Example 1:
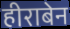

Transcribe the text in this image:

हीराबेन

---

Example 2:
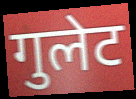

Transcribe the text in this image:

गुलेट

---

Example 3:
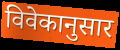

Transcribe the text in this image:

विवेकानुसार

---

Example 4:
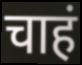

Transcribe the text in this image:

चाहं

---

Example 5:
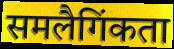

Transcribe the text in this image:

समलैगिंकता